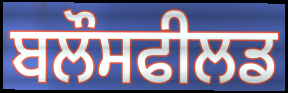
ਬਲੌਸਫੀਲਡ